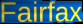
Fairfax